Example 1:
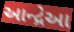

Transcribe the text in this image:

આન્દ્રેઆ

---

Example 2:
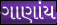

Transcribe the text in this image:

ગાણાંય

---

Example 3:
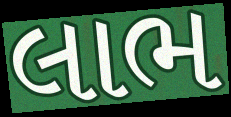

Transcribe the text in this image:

લાભ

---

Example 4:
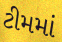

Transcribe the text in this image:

ટીમમાં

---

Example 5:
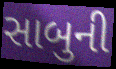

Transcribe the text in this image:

સાબુની